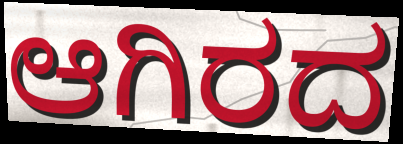
ಆಗಿರದ